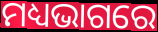
ମଧ୍ୟଭାଗରେ